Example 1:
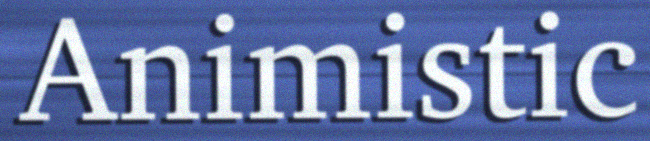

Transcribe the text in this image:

Animistic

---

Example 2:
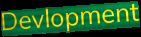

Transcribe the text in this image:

Devlopment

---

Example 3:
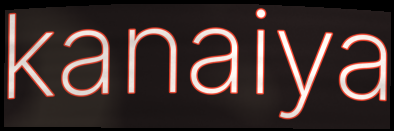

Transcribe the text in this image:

kanaiya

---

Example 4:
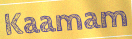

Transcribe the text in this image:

Kaamam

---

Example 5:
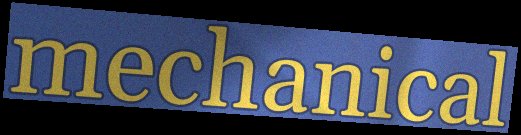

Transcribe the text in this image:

mechanical